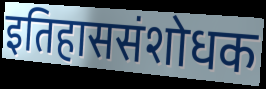
इतिहाससंशोधक